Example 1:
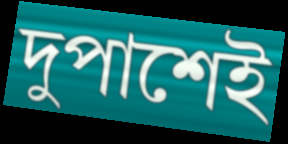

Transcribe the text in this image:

দুপাশেই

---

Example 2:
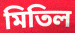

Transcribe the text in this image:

মিতিল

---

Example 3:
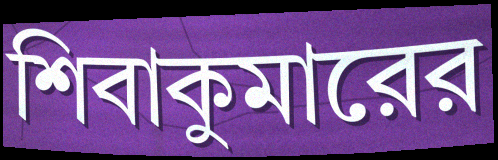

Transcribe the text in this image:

শিবাকুমারের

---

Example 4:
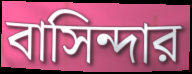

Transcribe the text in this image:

বাসিন্দার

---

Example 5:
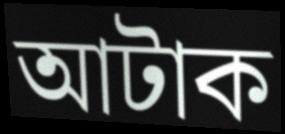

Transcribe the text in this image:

আটাক